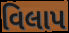
વિલાપ